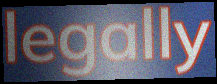
legally